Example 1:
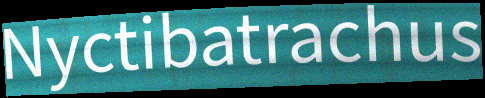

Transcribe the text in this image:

Nyctibatrachus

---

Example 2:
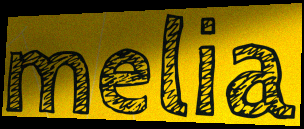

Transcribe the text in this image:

melia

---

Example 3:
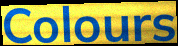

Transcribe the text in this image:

Colours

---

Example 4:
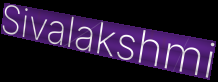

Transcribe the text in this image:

Sivalakshmi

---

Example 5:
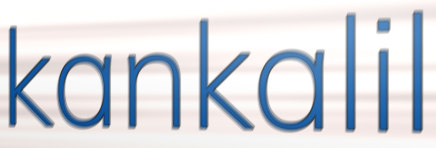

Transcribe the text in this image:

kankalil